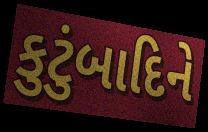
કુટુંબાદિને